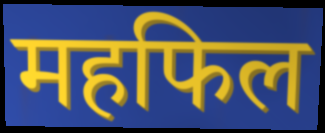
महफिल